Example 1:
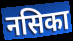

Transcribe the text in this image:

नसिका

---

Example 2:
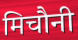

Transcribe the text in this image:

मिचौनी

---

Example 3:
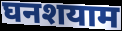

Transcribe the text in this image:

घनशयाम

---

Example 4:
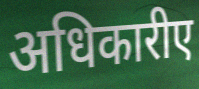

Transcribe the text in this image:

अधिकारीए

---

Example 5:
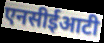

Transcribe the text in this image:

एनसीईआटी